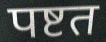
पष्टत